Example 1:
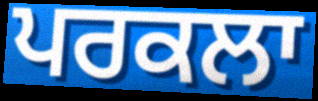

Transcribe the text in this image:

ਪਰਕਲਾ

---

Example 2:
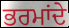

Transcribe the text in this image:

ਭਰਮਾਂਦੇ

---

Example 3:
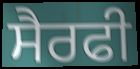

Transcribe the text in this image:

ਸੈਰਫੀ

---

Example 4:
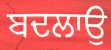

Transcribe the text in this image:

ਬਦਲਾਉ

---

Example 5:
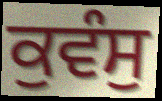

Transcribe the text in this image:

ਕੁਵੰਸੁ